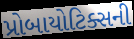
પ્રોબાયોટિક્સની